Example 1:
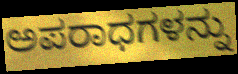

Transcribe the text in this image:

ಅಪರಾಧಗಳನ್ನು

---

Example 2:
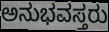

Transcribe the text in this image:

ಅನುಭವಸ್ತರು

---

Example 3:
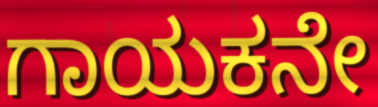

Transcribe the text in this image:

ಗಾಯಕನೇ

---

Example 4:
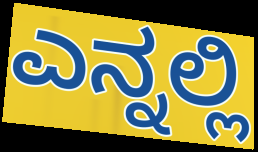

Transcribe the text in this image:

ಎನ್ನಲ್ಲಿ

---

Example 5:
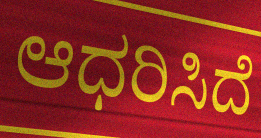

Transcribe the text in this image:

ಆಧರಿಸಿದೆ